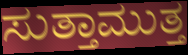
ಸುತ್ತಾಮುತ್ತ